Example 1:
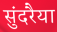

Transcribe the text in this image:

सुंदरैया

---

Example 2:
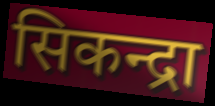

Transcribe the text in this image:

सिकन्द्रा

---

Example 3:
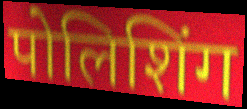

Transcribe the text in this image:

पोलिशिंग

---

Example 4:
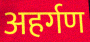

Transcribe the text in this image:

अहर्गण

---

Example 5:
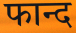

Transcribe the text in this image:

फान्द